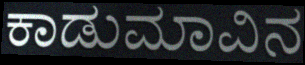
ಕಾಡುಮಾವಿನ